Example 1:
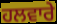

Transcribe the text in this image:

ਹਲਵਾਰੇ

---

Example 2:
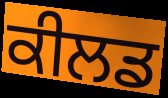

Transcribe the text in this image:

ਕੀਲਡ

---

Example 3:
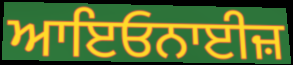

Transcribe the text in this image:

ਆਇਓਨਾਈਜ਼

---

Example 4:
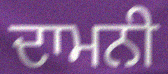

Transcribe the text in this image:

ਦਾਮਨੀ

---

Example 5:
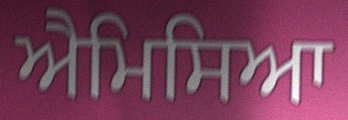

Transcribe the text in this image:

ਐਮਿਸਿਆ